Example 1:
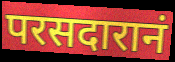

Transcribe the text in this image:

परसदारानं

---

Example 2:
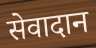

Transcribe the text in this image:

सेवादान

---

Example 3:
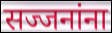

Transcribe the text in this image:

सज्जनांना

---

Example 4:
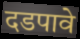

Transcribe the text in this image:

दडपावे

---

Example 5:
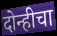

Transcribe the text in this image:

दोन्हीचा